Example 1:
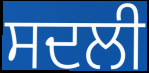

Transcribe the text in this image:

ਸਦਲੀ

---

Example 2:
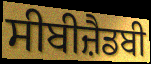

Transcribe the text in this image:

ਸੀਬੀਜ਼ੈਡਬੀ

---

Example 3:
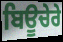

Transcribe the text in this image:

ਬਿਊਚੇਰੇ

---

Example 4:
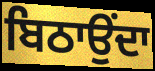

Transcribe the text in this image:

ਬਿਠਾਉਂਦਾ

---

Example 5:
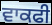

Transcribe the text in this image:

ਵਾਕਫੀ